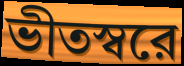
ভীতস্বরে